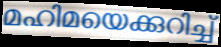
മഹിമയെക്കുറിച്ച്